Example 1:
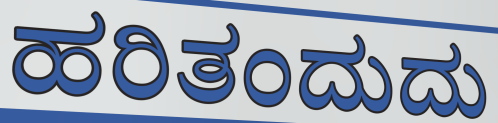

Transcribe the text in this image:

ಹರಿತಂದುದು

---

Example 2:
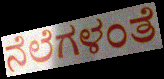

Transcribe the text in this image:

ನೆಲೆಗಳಂತೆ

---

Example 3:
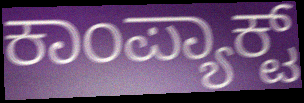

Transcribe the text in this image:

ಕಾಂಪ್ಯಾಕ್ಟ್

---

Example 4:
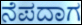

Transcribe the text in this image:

ನೆಪದಾಗ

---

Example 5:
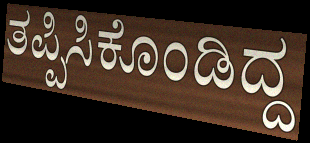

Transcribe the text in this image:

ತಪ್ಪಿಸಿಕೊಂಡಿದ್ದ